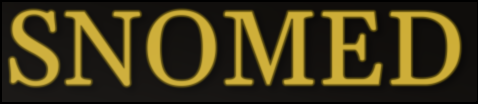
SNOMED